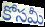
కోసమీ